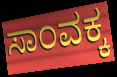
ಸಾಂವಕ್ಕ